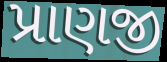
પ્રાણજી